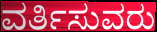
ವರ್ತಿಸುವರು